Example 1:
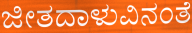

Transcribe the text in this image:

ಜೀತದಾಳುವಿನಂತೆ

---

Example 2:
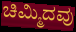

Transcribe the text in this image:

ಚಿಮ್ಮಿದವು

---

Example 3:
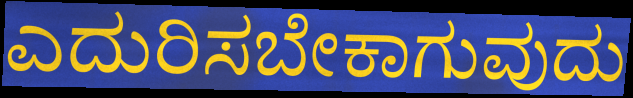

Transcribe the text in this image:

ಎದುರಿಸಬೇಕಾಗುವುದು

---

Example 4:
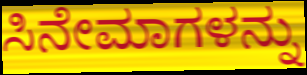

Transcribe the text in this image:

ಸಿನೇಮಾಗಳನ್ನು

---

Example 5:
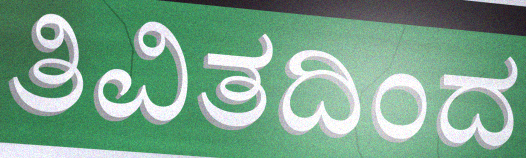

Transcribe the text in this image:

ತಿವಿತದಿಂದ